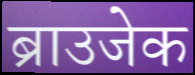
ब्राउजेक